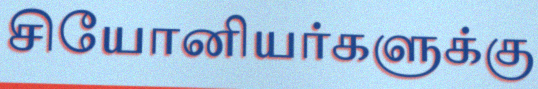
சியோனியர்களுக்கு